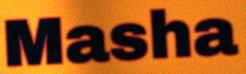
Masha